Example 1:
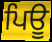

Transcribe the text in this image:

ਪਿਊ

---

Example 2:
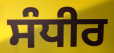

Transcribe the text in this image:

ਸੰਧੀਰ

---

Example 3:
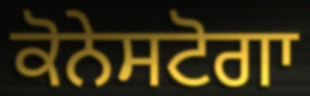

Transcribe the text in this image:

ਕੋਨੇਸਟੋਗਾ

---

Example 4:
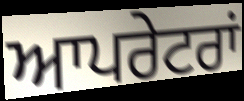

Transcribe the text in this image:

ਆਪਰੇਟਰਾਂ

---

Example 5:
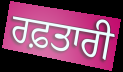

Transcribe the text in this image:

ਰਫ਼ਤਾਰੀ